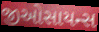
જીઓસાયન્સ